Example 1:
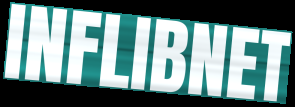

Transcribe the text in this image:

INFLIBNET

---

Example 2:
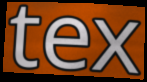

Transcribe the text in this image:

tex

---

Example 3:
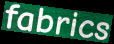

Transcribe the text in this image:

fabrics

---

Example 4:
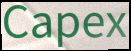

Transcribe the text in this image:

Capex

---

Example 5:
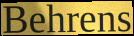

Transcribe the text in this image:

Behrens